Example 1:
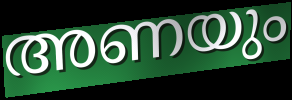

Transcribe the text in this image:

അണയും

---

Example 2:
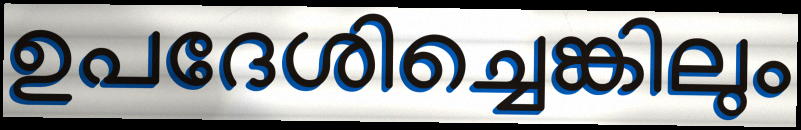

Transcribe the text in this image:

ഉപദേശിച്ചെങ്കിലും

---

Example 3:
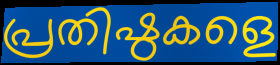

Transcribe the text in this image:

പ്രതിഷ്ഠകളെ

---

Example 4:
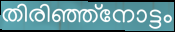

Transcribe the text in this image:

തിരിഞ്ഞ്നോട്ടം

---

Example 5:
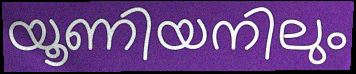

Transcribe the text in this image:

യൂണിയനിലും